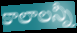
కాలాలన్నీ